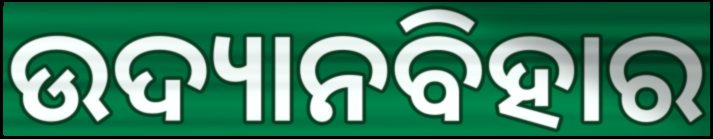
ଉଦ୍ୟାନବିହାର